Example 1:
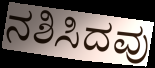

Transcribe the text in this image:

ನಶಿಸಿದವು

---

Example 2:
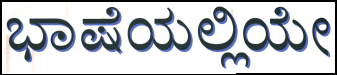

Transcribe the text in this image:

ಭಾಷೆಯಲ್ಲಿಯೇ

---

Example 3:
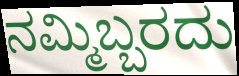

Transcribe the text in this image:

ನಮ್ಮಿಬ್ಬರದು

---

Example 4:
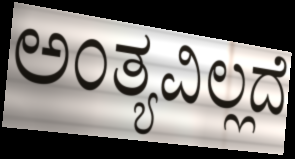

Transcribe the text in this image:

ಅಂತ್ಯವಿಲ್ಲದೆ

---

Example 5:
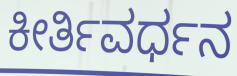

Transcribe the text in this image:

ಕೀರ್ತಿವರ್ಧನ